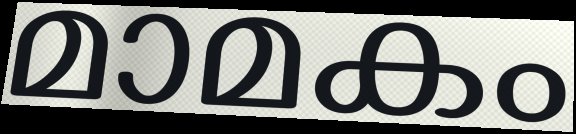
മാമകം